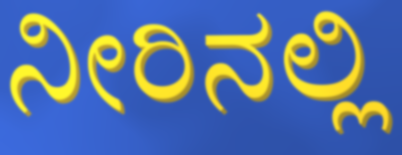
ನೀರಿನಲ್ಲಿ